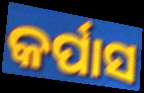
କର୍ପାସ